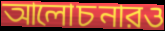
আলোচনারও